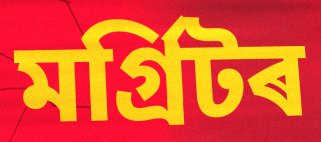
মৰ্গ্ৰিটৰ